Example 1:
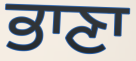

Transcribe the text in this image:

ਭਾਣਾ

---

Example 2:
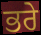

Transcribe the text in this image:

ਭਰੇ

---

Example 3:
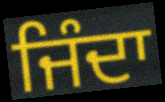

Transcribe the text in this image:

ਜਿੰਦਾ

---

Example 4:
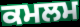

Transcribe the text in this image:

ਕਮਲਮ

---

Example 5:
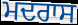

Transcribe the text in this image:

ਮਦਰਾਸ